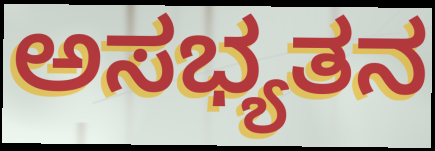
ಅಸಭ್ಯತನ